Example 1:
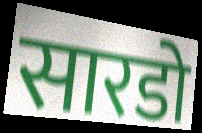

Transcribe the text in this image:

सारडो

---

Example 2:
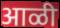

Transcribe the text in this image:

आळी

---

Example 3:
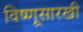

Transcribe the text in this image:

विष्णूसारखी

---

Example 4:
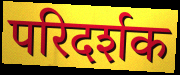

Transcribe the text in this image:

परिदर्शक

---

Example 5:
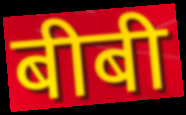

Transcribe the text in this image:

बीबी